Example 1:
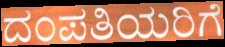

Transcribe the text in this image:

ದಂಪತಿಯರಿಗೆ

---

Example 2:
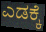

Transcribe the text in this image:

ಎಡಕ್ಕೆ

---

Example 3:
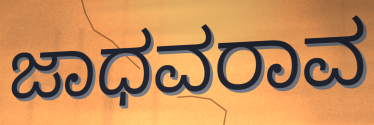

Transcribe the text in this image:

ಜಾಧವರಾವ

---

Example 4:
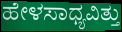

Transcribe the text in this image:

ಹೇಳಸಾಧ್ಯವಿತ್ತು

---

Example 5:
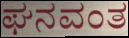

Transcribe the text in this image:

ಘನವಂತ